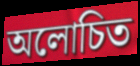
অলোচিত